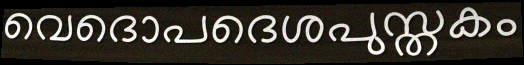
വെദൊപദെശപുസ്തകം